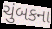
ચુંબકના